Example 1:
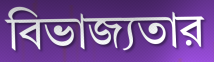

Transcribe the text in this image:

বিভাজ্যতার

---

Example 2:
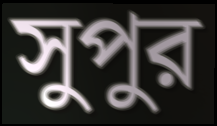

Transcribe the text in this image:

সুপুর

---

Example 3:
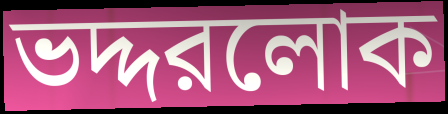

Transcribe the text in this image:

ভদ্দরলোক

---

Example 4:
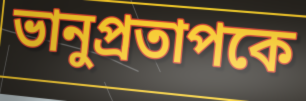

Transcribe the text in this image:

ভানুপ্রতাপকে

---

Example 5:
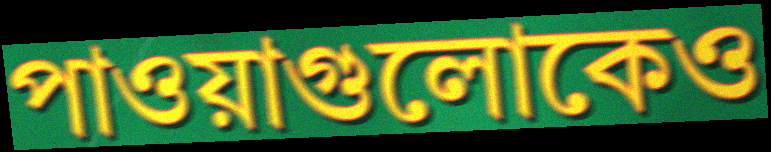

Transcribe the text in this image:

পাওয়াগুলোকেও